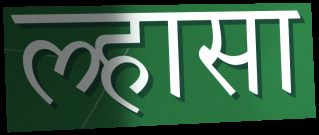
ल्हासा